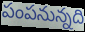
పంపనున్నది